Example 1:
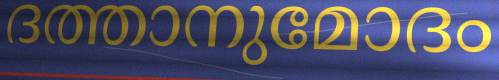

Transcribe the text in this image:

ദത്താനുമോദം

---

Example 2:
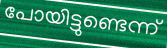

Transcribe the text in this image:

പോയിട്ടുണ്ടെന്ന്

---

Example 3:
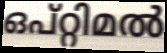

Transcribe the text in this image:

ഒപ്റ്റിമൽ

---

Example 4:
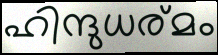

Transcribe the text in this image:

ഹിന്ദുധര്മം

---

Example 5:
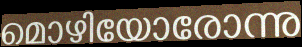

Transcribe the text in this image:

മൊഴിയോരോന്നു